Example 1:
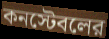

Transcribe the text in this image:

কনস্টেবলের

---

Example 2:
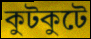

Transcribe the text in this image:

কুটকুটে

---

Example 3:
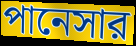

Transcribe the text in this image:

পানেসার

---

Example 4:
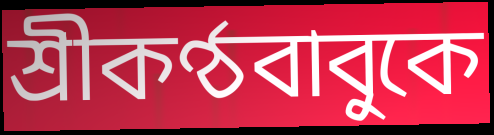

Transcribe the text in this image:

শ্রীকণ্ঠবাবুকে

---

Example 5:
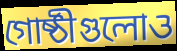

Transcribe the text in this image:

গোষ্ঠীগুলোও